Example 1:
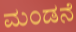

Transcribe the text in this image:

ಮಂಡನೆ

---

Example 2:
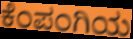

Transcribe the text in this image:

ಕೆಂಪಂಗಿಯ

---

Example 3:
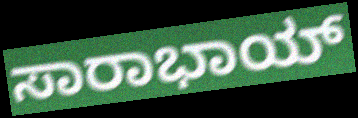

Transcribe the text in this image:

ಸಾರಾಭಾಯ್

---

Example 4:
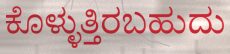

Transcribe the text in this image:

ಕೊಳ್ಳುತ್ತಿರಬಹುದು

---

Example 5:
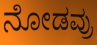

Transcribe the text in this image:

ನೋಡವ್ರು